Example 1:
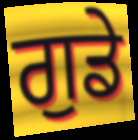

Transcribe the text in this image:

ਗੁਡੇ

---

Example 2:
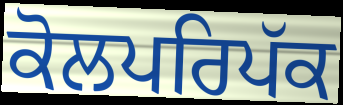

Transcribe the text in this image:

ਕੋਲਪਰਿਪੱਕ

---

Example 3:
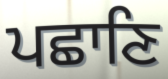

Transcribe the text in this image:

ਪਛਾਣਿ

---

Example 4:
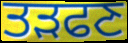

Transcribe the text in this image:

ਤੜਫਣ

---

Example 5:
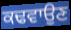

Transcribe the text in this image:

ਕਢਵਾਉਣ